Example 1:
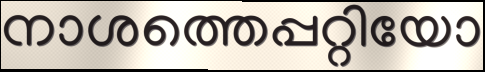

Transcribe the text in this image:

നാശത്തെപ്പറ്റിയോ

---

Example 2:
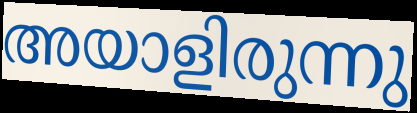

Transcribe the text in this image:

അയാളിരുന്നു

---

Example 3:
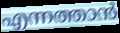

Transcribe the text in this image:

എന്നത്താൻ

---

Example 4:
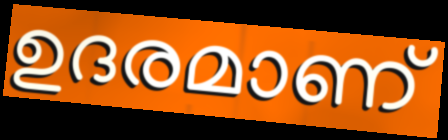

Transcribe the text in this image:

ഉദരമാണ്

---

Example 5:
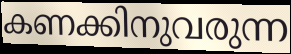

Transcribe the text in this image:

കണക്കിനുവരുന്ന